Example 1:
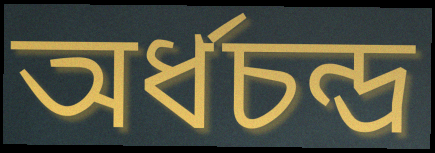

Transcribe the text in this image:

অৰ্ধচন্দ্ৰ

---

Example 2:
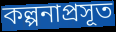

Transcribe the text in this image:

কল্পনাপ্ৰসূত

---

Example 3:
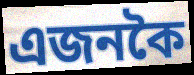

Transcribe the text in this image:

এজনকৈ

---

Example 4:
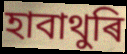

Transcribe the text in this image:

হাবাথুৰি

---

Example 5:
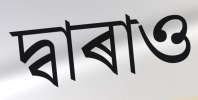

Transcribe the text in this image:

দ্বাৰাও